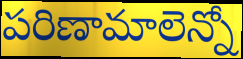
పరిణామాలెన్నో